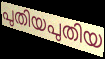
പുതിയപുതിയ